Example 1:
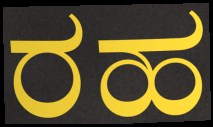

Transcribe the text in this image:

ರಹ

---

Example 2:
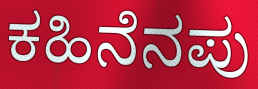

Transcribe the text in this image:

ಕಹಿನೆನಪು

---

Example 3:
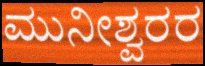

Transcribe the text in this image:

ಮುನೀಶ್ವರರ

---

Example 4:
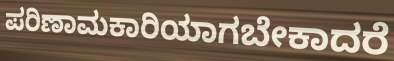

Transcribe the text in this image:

ಪರಿಣಾಮಕಾರಿಯಾಗಬೇಕಾದರೆ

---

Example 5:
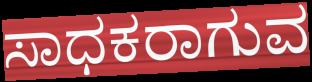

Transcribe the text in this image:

ಸಾಧಕರಾಗುವ